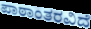
ಪಾಠಾಂತರವಿದೆ